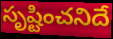
సృష్టించనిదే